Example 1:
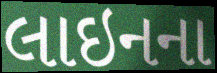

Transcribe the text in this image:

લાઇનના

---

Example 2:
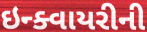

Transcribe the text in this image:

ઇન્ક્વાયરીની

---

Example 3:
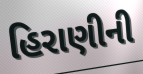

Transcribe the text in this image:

હિરાણીની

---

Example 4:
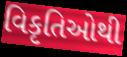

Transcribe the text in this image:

વિકૃતિઓથી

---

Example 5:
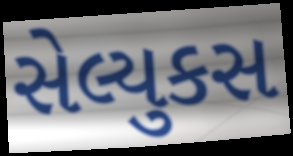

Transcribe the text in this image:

સેલ્યુકસ